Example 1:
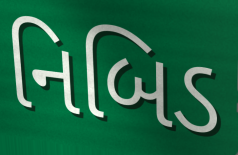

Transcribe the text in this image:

નિબિડ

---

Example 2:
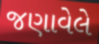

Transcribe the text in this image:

જણાવેલે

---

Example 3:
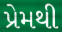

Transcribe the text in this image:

પ્રેમથી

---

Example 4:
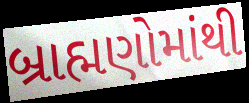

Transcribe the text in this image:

બ્રાહ્મણોમાંથી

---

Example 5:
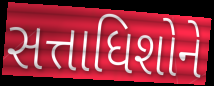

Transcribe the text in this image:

સત્તાધિશોને